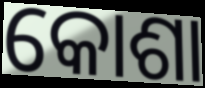
କୋଶା